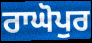
ਰਾਘੋਪੁਰ